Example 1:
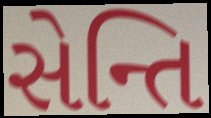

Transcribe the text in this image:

સેન્તિ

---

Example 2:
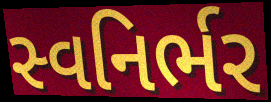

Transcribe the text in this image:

સ્વનિર્ભર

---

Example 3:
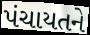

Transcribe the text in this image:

પંચાયતને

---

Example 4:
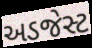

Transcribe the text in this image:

અડજેસ્ટ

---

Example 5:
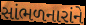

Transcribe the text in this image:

સાંભળનારાંને